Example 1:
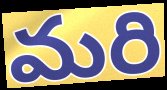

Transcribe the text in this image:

మరి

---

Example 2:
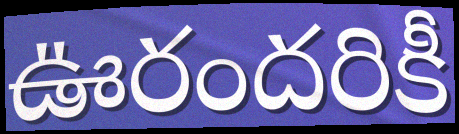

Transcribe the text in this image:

ఊరందరికీ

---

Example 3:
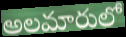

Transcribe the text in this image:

అలమారులో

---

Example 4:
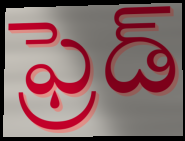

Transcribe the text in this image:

ఫ్రెడ్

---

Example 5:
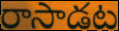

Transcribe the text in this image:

రాసాడట